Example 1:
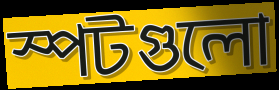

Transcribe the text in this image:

স্পটগুলো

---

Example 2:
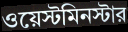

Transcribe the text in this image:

ওয়েস্টমিনস্টার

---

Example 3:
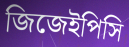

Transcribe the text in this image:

জিজেইপিসি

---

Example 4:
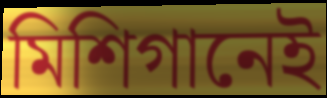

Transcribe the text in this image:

মিশিগানেই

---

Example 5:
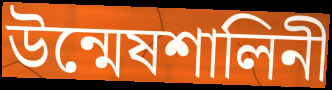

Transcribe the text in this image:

উন্মেষশালিনী